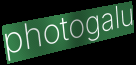
photogalu